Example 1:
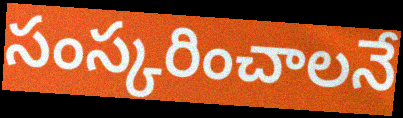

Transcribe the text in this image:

సంస్కరించాలనే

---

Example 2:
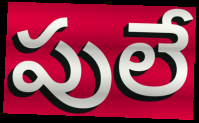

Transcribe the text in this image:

పులే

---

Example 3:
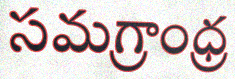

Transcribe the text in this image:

సమగ్రాంధ్ర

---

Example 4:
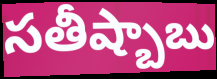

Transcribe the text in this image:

సతీష్బాబు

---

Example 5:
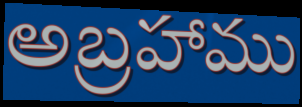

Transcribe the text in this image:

అబ్రహాము